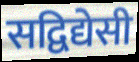
सद्विद्येसी